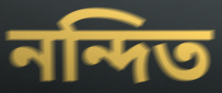
নন্দিত